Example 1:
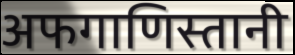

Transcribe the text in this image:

अफगाणिस्तानी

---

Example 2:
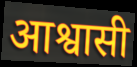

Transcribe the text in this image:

आश्वासी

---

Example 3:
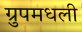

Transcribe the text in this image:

ग्रुपमधली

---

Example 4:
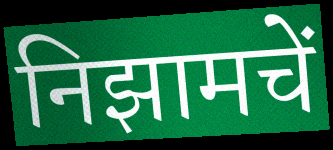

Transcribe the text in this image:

निझामचें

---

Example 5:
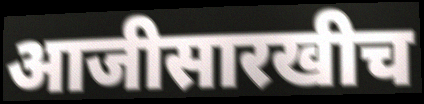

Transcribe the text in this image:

आजीसारखीच